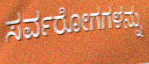
ಸರ್ವರೋಗಗಳನ್ನು